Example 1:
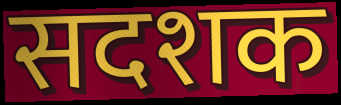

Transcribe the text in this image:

सदशक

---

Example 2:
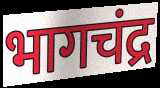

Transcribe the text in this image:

भागचंद्र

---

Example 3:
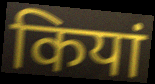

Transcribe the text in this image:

कियां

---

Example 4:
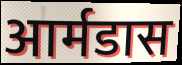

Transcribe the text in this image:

आर्मडास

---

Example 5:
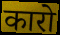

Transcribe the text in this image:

कारो